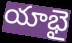
యాభై